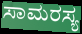
ಸಾಮರಸ್ಯ